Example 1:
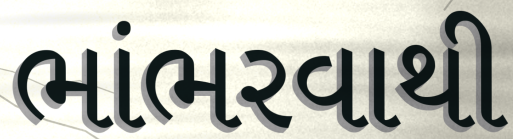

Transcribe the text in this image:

ભાંભરવાથી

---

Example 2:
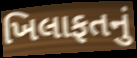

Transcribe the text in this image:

ખિલાફતનું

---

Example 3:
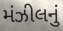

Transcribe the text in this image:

મંઝીલનું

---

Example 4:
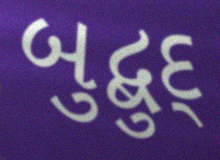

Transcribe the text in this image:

બુદ્બુદ્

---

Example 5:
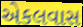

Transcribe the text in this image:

એકલવાસ